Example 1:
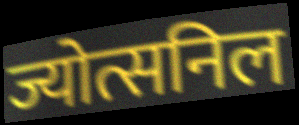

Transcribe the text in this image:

ज्योत्सनिल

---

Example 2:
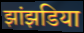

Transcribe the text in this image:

झांझडिया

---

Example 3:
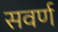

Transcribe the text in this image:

सवर्ण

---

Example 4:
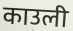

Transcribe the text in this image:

काउली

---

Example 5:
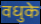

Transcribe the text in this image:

वधुके